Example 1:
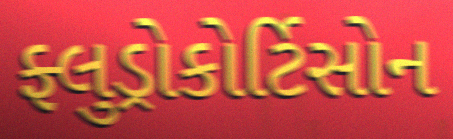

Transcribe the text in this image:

ફ્લુડ્રોકોર્ટિસોન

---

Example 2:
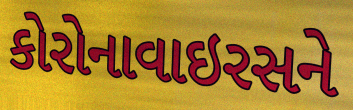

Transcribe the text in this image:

કોરોનાવાઇરસને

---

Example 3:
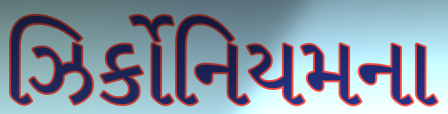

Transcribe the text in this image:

ઝિર્કોનિયમના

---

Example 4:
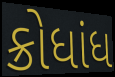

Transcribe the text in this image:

ક્રોધાંધ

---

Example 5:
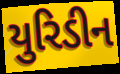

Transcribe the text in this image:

યુરિડીન